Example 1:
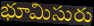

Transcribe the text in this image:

భూమిసురు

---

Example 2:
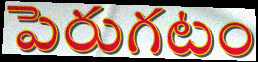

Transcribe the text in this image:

పెరుగటం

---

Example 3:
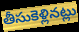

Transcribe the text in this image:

తీసుకెళ్లినట్లు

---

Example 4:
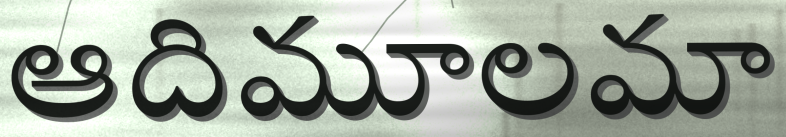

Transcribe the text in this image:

ఆదిమూలమా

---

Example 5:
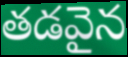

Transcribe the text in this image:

తడవైన